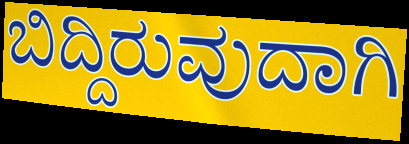
ಬಿದ್ದಿರುವುದಾಗಿ